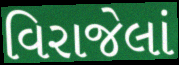
વિરાજેલાં